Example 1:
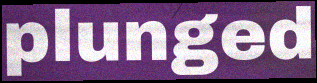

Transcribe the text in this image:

plunged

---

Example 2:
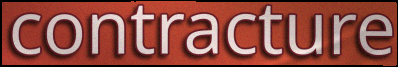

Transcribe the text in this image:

contracture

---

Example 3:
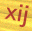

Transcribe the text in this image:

xij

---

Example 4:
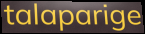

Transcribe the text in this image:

talaparige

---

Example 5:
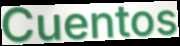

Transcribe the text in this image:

Cuentos